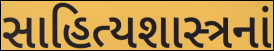
સાહિત્યશાસ્ત્રનાં